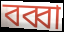
বব্বা